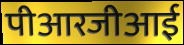
पीआरजीआई